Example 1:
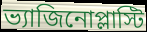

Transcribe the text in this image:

ভ্যাজিনোপ্লাস্টি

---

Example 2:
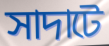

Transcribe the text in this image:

সাদাটে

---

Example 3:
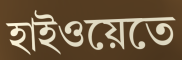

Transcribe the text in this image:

হাইওয়েতে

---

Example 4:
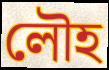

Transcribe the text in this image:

লৌহ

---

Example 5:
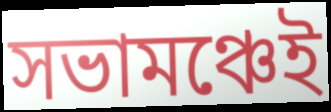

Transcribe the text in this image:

সভামঞ্চেই